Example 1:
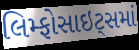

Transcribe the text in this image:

લિમ્ફોસાઇટ્સમાં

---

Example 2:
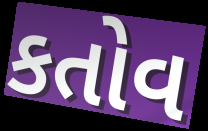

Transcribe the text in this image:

કતોવ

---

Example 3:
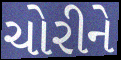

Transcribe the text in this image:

ચોરીને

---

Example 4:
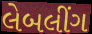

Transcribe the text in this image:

લેબલીંગ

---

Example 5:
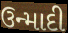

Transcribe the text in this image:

ઉન્માદી